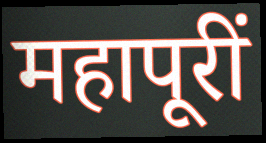
महापूरीं